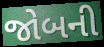
જોબની